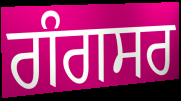
ਗੰਗਸਰ